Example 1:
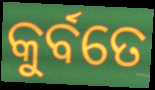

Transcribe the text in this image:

କୁର୍ବତେ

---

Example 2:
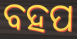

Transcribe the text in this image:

ବହପ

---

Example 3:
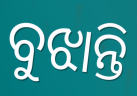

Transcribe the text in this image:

ବୁଝାନ୍ତି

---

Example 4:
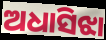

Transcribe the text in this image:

ଅଧାସିଝା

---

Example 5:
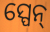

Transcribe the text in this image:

ସ୍ପେନ୍